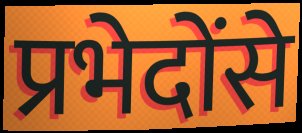
प्रभेदोंसे